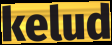
kelud